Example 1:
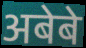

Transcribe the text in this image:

अबेबे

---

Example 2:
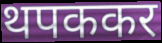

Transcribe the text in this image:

थपककर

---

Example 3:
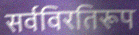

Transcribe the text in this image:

सर्वविरतिरूप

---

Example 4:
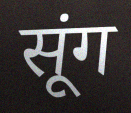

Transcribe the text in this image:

सूंग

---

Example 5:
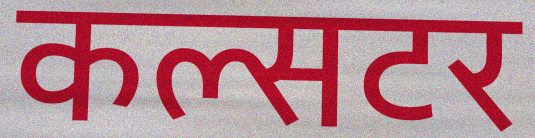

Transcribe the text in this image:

कल्सटर